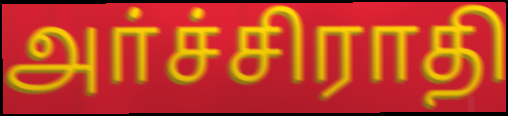
அர்ச்சிராதி